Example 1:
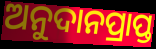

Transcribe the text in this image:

ଅନୁଦାନପ୍ରାପ୍ତ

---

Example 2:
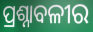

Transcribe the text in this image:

ପ୍ରଶ୍ନାବଳୀର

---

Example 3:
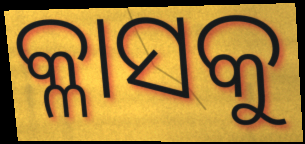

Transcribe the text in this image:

କ୍ଳାସକୁ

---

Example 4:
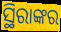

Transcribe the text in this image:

ସ୍ଥିରାଙ୍କର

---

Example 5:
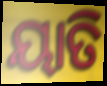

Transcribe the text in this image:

ୟାତି